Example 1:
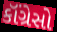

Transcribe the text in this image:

કૉંગ્રેસો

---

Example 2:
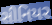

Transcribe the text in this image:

સીનિયર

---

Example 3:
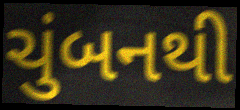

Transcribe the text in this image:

ચુંબનથી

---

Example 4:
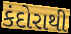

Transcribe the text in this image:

કંદોરાથી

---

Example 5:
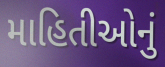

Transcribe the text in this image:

માહિતીઓનું